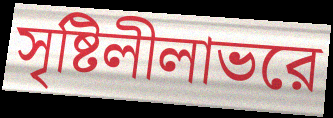
সৃষ্টিলীলাভরে